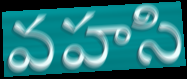
వహసి